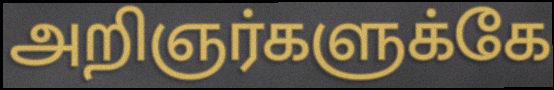
அறிஞர்களுக்கே